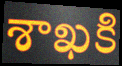
శాఖకి